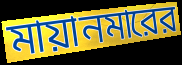
মায়ানমারের